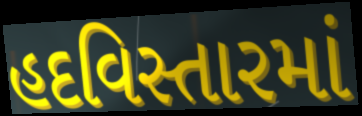
હદવિસ્તારમાં